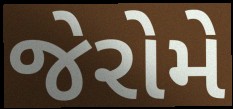
જેરોમે